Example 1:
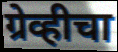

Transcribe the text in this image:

ग्रेव्हीचा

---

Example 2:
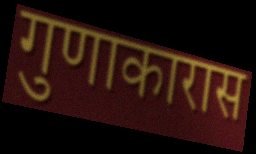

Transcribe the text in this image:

गुणाकारास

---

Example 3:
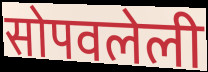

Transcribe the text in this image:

सोपवलेली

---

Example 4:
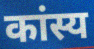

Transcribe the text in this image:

कांस्य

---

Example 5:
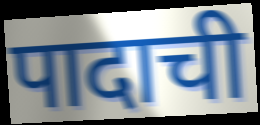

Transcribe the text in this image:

पादाची